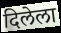
दिलेला